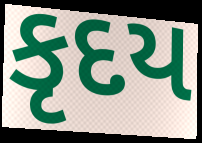
કૃદય